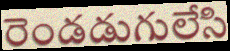
రెండడుగులేసి